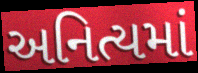
અનિત્યમાં